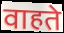
वाहते